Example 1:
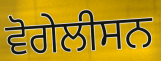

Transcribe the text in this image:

ਵੋਗੇਲੀਸਨ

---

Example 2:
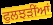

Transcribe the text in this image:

ਫੁਲਝੜੀਂਆਂ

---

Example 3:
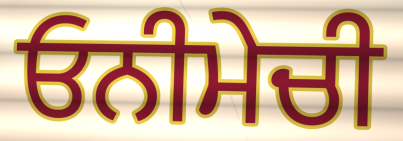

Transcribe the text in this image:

ਓਨੀਮੇਚੀ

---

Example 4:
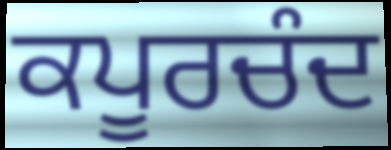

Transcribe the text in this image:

ਕਪੂਰਚੰਦ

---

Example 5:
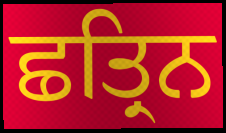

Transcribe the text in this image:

ਛਤ੍ਰਿਨ